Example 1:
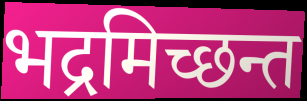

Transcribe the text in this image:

भद्रमिच्छन्त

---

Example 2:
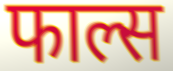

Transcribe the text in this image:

फाल्स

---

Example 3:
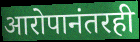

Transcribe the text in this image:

आरोपानंतरही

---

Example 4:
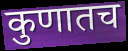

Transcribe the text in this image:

कुणातच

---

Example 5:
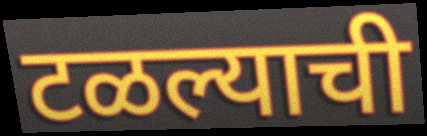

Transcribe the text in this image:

टळल्याची